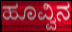
ಹೂವ್ವಿನ